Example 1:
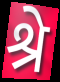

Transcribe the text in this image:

श्रे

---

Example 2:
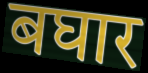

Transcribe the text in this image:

बघार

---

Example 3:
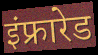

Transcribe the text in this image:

इंफ्रारेड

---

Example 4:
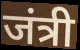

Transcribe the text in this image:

जंत्री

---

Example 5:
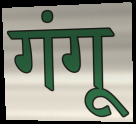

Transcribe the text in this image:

गंगू